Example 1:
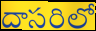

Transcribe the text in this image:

దాసరిలో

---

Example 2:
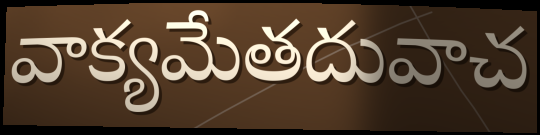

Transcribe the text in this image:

వాక్యమేతదువాచ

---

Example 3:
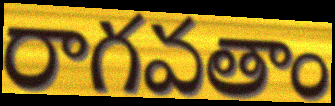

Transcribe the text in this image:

రాగవతాం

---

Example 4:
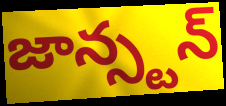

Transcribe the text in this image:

జాన్స్టన్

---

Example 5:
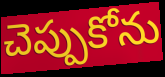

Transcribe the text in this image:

చెప్పుకోను